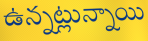
ఉన్నట్లున్నాయి